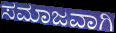
ಸಮಾಜವಾಗಿ